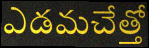
ఎడమచేత్తో